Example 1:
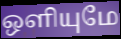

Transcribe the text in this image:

ஒளியுமே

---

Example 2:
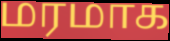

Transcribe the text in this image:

மரமாக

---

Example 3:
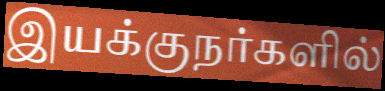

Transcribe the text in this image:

இயக்குநர்களில்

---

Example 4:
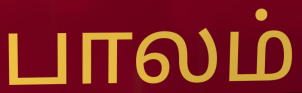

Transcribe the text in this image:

பாலம்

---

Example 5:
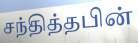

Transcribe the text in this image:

சந்தித்தபின்